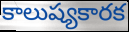
కాలుష్యకారక